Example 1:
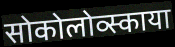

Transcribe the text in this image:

सोकोलोव्स्काया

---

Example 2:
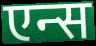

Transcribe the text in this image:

एन्स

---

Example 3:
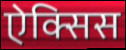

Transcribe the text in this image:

ऐक्सिस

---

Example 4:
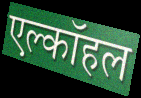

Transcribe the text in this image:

एल्कॉहल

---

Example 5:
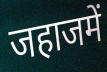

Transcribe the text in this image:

जहाजमें